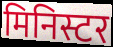
मिनिस्टर